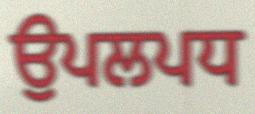
ਉਪਲਪਧ